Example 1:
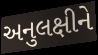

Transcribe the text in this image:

અનુલક્ષીને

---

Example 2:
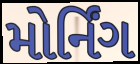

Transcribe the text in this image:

મોર્નિંગ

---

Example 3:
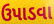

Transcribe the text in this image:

ઉપાડવા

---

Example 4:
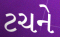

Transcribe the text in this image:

ટચને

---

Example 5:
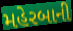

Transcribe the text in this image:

મહેરબાની